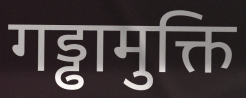
गड्ढामुक्ति